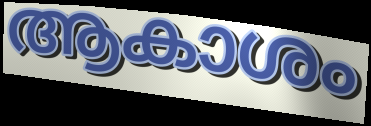
ആകാശം